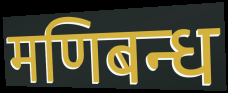
मणिबन्ध